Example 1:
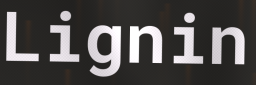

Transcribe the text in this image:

Lignin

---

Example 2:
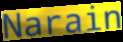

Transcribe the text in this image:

Narain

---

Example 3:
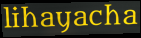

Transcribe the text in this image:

lihayacha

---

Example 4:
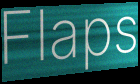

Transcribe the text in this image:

Flaps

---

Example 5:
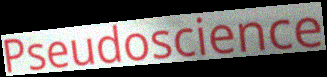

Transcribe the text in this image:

Pseudoscience